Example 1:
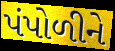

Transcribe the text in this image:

પંપોળીને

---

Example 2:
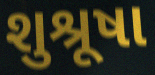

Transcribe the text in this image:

શુશ્રૂષા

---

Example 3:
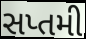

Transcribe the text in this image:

સપ્તમી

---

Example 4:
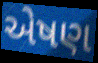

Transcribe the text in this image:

એષણ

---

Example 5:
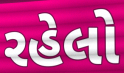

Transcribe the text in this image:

રહેલો